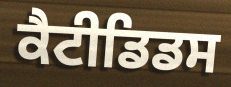
ਕੈਟੀਡਿਡਸ